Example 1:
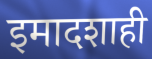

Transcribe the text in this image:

इमादशाही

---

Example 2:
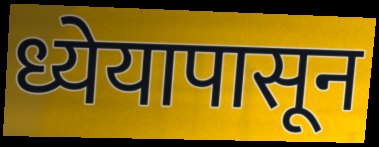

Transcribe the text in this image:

ध्येयापासून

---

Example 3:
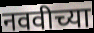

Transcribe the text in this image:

नववीच्या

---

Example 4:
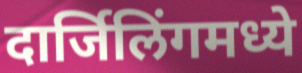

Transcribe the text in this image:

दार्जिलिंगमध्ये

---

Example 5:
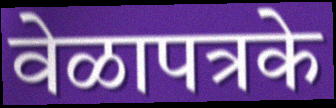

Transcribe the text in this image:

वेळापत्रके